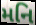
મનિ